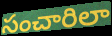
సంచారిలా